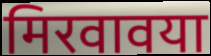
मिरवावया